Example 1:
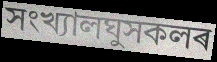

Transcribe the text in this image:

সংখ্যালঘুসকলৰ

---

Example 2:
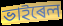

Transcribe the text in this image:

ভাইৰেল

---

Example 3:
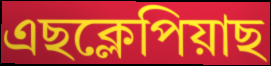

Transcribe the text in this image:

এছক্লেপিয়াছ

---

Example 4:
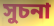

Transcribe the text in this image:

সুচনা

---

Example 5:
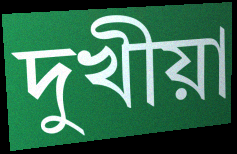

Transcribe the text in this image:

দুখীয়া